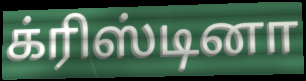
க்ரிஸ்டினா